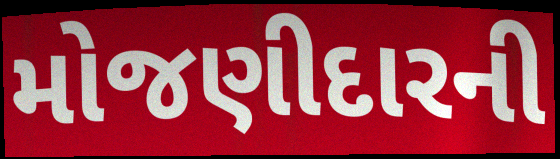
મોજણીદારની